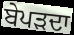
ਬੇਪੜਦਾ